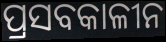
ପ୍ରସବକାଳୀନ